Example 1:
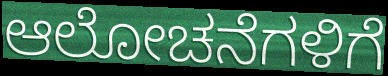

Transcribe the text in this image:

ಆಲೋಚನೆಗಳಿಗೆ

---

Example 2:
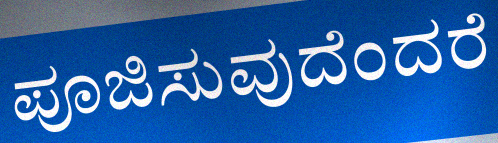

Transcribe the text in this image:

ಪೂಜಿಸುವುದೆಂದರೆ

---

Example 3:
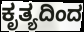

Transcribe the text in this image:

ಕೃತ್ಯದಿಂದ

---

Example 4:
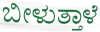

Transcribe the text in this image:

ಬೀಳುತ್ತಾಳೆ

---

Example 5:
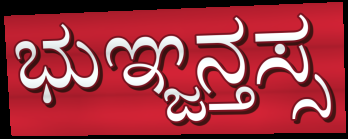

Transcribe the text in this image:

ಭುಞ್ಜನ್ತಸ್ಸ